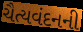
ચૈત્યવંદનની